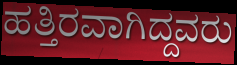
ಹತ್ತಿರವಾಗಿದ್ದವರು